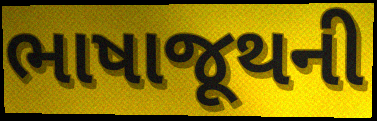
ભાષાજૂથની